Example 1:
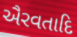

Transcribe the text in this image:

ઐરવતાદિ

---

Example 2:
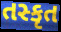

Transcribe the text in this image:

તસ્કૃત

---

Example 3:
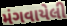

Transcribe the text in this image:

મંગવાયેલી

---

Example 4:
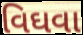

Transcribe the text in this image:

વિઘવા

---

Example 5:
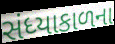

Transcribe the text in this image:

સંધ્યાકાળના